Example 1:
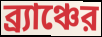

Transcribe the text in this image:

ব্র্যাঞ্চের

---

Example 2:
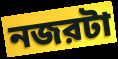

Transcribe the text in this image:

নজরটা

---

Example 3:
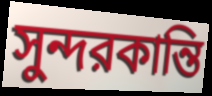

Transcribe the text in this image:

সুন্দরকান্তি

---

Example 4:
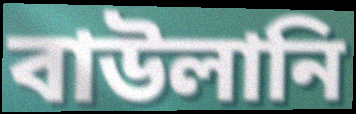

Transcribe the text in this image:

বাউলানি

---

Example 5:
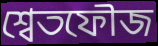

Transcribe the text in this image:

শ্বেতফৌজ